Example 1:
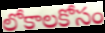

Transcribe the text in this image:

లోకాలకోసం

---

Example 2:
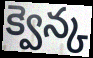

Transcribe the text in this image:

క్వెన్క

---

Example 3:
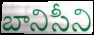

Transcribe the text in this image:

బానిసీని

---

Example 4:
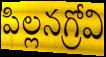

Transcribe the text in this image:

పిల్లనగ్రోవి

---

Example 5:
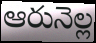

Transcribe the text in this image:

ఆరునెల్ల